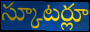
స్కూటర్లూ